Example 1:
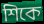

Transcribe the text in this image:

শিকে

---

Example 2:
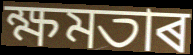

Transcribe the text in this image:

ক্ষমতাৰ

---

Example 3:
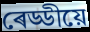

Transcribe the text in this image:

ৰেড্ডীয়ে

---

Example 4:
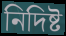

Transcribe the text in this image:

নিদিষ্ট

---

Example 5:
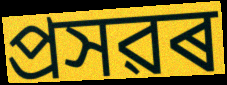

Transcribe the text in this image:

প্ৰসৱৰ